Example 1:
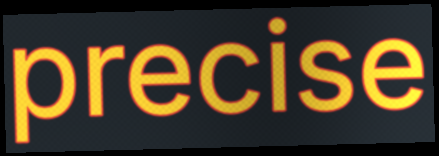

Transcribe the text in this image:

precise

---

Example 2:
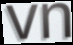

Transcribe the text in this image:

vn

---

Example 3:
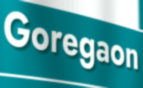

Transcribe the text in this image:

Goregaon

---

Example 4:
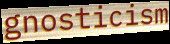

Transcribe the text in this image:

gnosticism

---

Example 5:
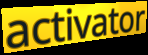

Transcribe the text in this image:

activator